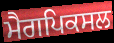
ਮੈਗਪਿਕਸਲ